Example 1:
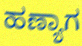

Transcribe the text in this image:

ಹಣ್ಯಾಗ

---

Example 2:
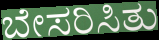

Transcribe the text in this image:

ಬೇಸರಿಸಿತು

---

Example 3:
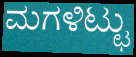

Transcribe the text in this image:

ಮಗಳಿಟ್ಟು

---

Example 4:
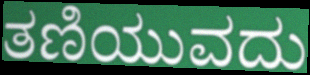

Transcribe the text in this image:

ತಣಿಯುವದು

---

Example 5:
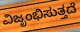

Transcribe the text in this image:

ವಿಜೃಂಭಿಸುತ್ತದೆ